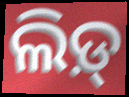
ଲିଡ଼୍